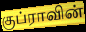
குப்ராவின்